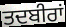
ਤਦਬੀਰਾਂ